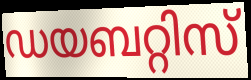
ഡയബറ്റിസ്